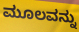
ಮೂಲವನ್ನು